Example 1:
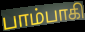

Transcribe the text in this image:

பாம்பாகி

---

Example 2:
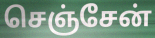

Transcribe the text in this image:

செஞ்சேன்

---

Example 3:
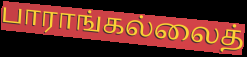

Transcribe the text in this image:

பாராங்கல்லைத்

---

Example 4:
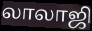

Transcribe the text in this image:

லாலாஜி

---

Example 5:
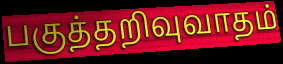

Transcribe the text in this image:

பகுத்தறிவுவாதம்